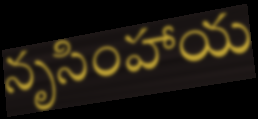
నృసింహాయ